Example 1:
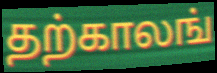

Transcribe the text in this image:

தற்காலங்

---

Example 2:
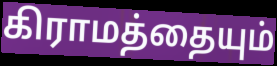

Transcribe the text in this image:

கிராமத்தையும்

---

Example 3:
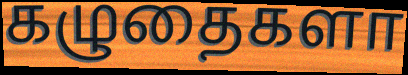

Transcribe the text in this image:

கழுதைகளா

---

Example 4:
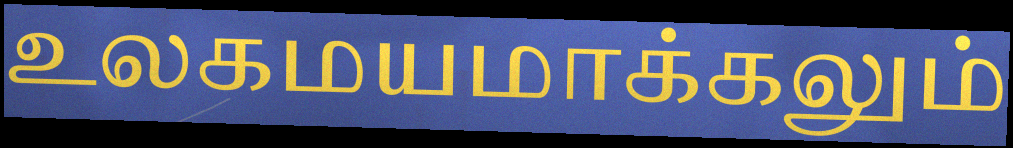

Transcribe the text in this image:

உலகமயமாக்கலும்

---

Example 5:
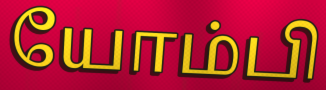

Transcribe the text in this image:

யோம்பி